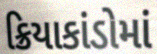
ક્રિયાકાંડોમાં